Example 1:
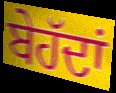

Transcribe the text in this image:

ਬੇਹੱਦਾਂ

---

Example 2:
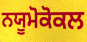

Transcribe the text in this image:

ਨਯੂਮੋਕੋਕਲ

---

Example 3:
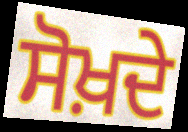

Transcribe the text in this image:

ਸੋਖ਼ਦੇ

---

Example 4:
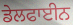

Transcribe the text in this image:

ਡੇਲਫਾਈਨ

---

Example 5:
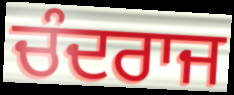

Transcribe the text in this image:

ਚੰਦਰਾਜ